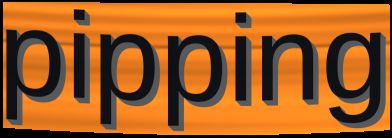
pipping